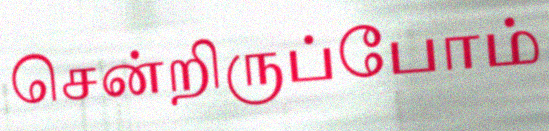
சென்றிருப்போம்